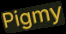
Pigmy